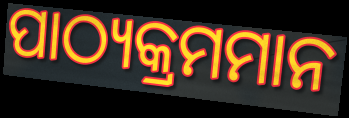
ପାଠ୍ୟକ୍ରମମାନ